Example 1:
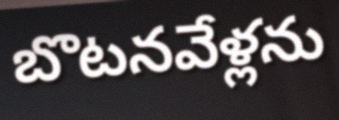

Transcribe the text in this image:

బొటనవేళ్లను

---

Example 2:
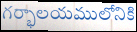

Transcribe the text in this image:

గర్భాలయములోనికి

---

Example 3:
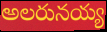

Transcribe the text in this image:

అలరునయ్య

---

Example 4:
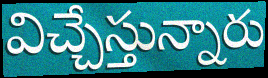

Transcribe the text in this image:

విచ్చేస్తున్నారు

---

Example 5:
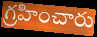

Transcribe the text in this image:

గ్రహించారు